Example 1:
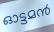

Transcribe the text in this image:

ഓട്ടമൻ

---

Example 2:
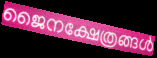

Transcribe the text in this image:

ജൈനക്ഷേത്രങ്ങൾ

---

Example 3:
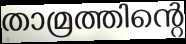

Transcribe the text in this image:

താമ്രത്തിന്റെ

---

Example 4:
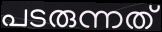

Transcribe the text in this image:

പടരുന്നത്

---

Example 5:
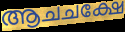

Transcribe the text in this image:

ആചചക്ഷേ